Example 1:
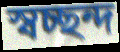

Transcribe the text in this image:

স্বচ্ছন্দ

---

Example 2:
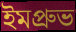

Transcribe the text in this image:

ইমপ্রুভ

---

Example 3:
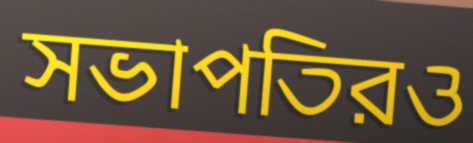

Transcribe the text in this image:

সভাপতিরও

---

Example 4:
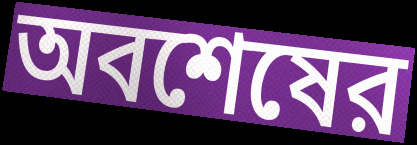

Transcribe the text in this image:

অবশেষের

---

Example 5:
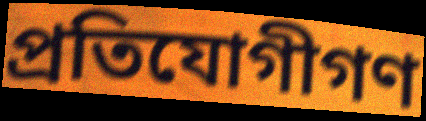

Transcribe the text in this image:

প্রতিযোগীগণ